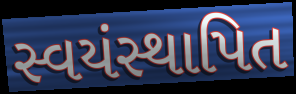
સ્વયંસ્થાપિત